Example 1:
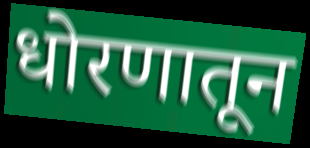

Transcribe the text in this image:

धोरणातून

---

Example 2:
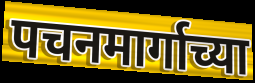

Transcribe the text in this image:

पचनमार्गाच्या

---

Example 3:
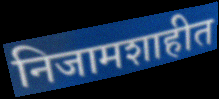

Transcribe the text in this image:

निजामशाहीत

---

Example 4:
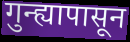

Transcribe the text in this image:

गुन्ह्यापासून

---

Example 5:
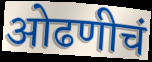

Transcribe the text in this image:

ओढणीचं